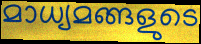
മാധ്യമങ്ങളുടെ